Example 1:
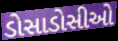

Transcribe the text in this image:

ડોસાડોસીઓ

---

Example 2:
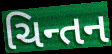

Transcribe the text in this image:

ચિન્તન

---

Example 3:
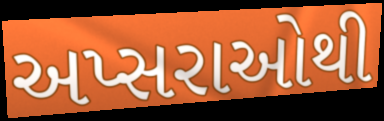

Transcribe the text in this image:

અપ્સરાઓથી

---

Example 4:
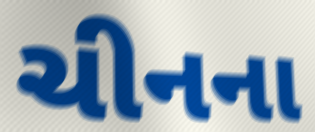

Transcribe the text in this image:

ચીનના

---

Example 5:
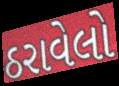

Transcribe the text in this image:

ઠરાવેલો